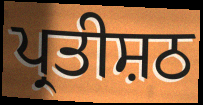
ਪ੍ਰਤੀਸ਼ਠ